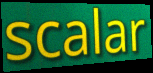
scalar